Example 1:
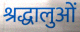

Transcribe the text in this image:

श्रद्धालुओं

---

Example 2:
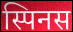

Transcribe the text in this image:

स्पिनस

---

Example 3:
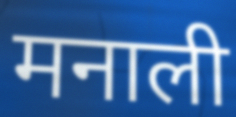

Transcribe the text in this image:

मनाली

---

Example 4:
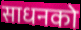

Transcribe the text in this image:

साधनको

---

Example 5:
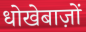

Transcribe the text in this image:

धोखेबाज़ों